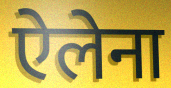
ऐलेना